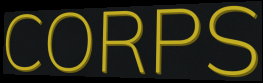
CORPS